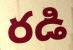
రడి